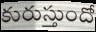
కురుస్తుందో